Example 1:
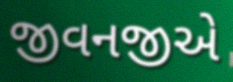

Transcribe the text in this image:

જીવનજીએ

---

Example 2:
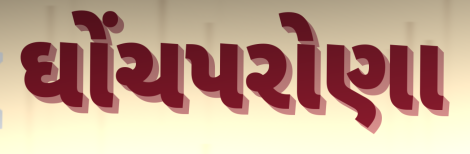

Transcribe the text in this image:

ઘોંચપરોણા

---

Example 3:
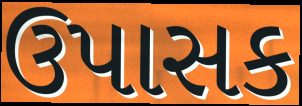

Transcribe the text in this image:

ઉપાસક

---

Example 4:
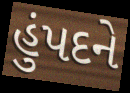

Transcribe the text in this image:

હુંપદને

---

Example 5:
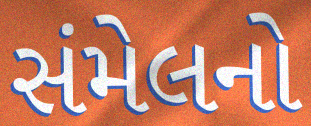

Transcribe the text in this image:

સંમેલનો